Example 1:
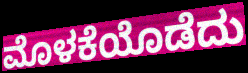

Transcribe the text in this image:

ಮೊಳಕೆಯೊಡೆದು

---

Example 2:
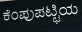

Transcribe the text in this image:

ಕೆಂಪುಪಟ್ಟಿಯ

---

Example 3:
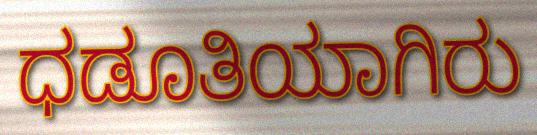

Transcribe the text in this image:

ಧಡೂತಿಯಾಗಿರು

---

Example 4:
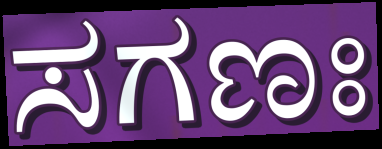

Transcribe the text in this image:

ಸಗಣಃ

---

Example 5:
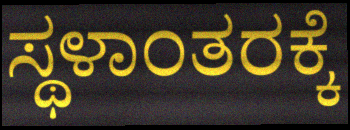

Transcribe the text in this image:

ಸ್ಥಳಾಂತರಕ್ಕೆ